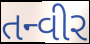
તન્વીર